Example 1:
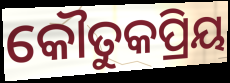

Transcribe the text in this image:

କୌତୁକପ୍ରିୟ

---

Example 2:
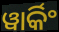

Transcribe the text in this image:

ୱାର୍କିଂ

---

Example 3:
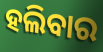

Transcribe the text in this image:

ହଲିବାର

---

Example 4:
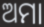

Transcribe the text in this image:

ଅମା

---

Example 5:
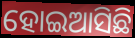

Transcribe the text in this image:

ହୋଇଆସିଛି